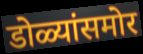
डोळ्यांसमोर